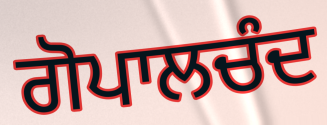
ਗੋਪਾਲਚੰਦ